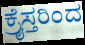
ಕ್ರೈಸ್ತರಿಂದ